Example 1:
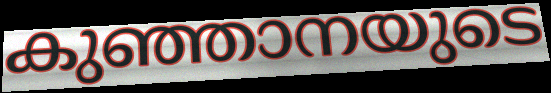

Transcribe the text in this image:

കുഞ്ഞാനയുടെ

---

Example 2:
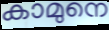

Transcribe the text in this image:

കാമുനെ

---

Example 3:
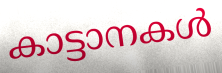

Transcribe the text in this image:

കാട്ടാനകൾ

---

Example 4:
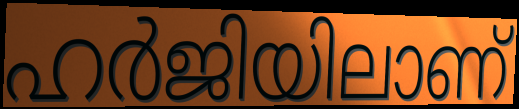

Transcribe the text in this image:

ഹർജിയിലാണ്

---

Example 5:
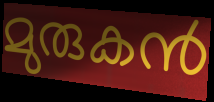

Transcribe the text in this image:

മുരുകൻ